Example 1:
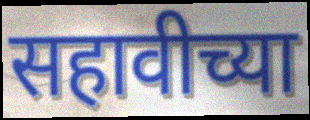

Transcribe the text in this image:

सहावीच्या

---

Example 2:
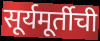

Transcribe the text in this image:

सूर्यमूर्तीची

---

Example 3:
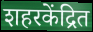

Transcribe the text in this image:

शहरकेंद्रित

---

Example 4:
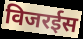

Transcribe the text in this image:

विजरईस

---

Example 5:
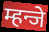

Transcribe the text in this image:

म्हन्जे